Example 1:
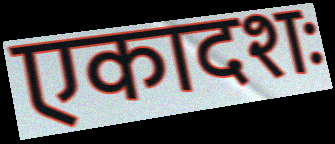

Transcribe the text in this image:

एकादशः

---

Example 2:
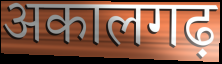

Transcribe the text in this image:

अकालगढ़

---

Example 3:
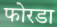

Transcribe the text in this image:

फोरडा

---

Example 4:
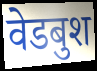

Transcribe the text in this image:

वेडबुश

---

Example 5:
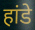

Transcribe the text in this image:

हांडे